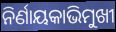
ନିର୍ଣାୟକାଭିମୁଖୀ